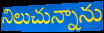
నిలుచున్నాను